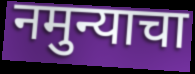
नमुन्याचा